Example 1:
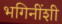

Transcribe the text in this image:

भगिनींशी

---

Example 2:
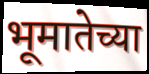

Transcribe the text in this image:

भूमातेच्या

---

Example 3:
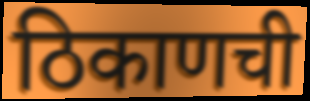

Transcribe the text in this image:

ठिकाणची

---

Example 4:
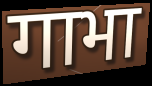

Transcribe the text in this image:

गाभा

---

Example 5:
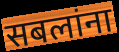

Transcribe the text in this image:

सबलांना